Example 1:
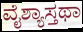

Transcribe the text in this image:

ವೈಶ್ಯಾಸ್ತಥಾ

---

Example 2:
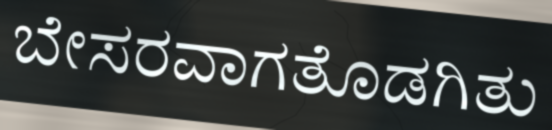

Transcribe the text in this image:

ಬೇಸರವಾಗತೊಡಗಿತು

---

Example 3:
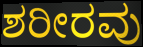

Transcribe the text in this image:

ಶರೀರವು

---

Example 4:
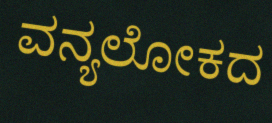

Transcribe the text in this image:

ವನ್ಯಲೋಕದ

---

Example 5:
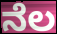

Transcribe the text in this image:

ನೆಲ